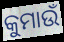
କୁମାଉଁ